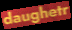
daughetr